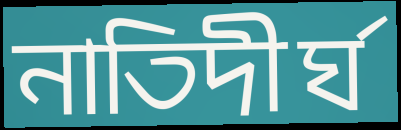
নাতিদীর্ঘ